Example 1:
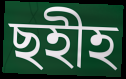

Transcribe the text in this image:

ছহীহ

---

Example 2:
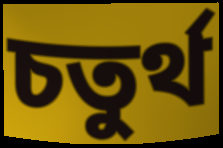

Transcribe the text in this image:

চতুৰ্থ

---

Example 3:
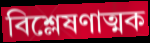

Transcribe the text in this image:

বিশ্লেষণাত্মক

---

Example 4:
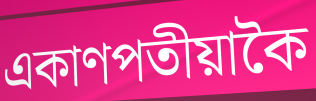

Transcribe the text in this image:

একাণপতীয়াকৈ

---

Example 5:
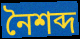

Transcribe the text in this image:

নৈশব্দ